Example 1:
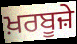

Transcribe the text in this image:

ਖ਼ਰਬੂਜ਼ੇ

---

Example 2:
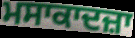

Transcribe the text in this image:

ਮਸਾਕਾਦਜ਼ਾ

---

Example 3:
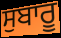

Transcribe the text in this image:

ਸੁਬਾਰੂ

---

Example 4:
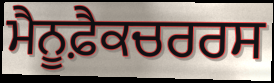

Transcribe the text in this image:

ਮੈਨੂਫ਼ੈਕਚਰਰਸ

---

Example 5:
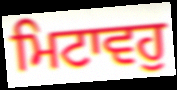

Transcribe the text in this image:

ਮਿਟਾਵਹੁ